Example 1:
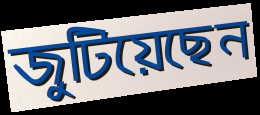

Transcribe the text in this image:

জুটিয়েছেন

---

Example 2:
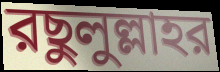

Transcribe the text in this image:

রছুলুল্লাহর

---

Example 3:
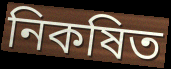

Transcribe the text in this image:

নিকষিত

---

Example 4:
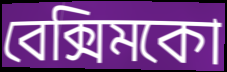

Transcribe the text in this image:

বেক্সিমকো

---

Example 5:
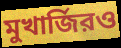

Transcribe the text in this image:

মুখার্জিরও